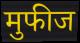
मुफीज